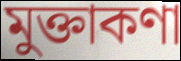
মুক্তাকণা